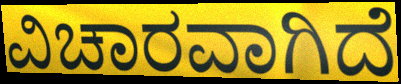
ವಿಚಾರವಾಗಿದೆ